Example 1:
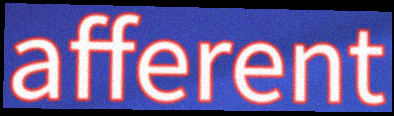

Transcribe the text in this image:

afferent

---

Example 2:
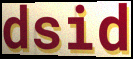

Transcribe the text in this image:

dsid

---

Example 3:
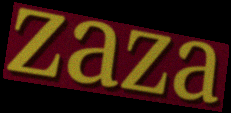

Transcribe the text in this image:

zaza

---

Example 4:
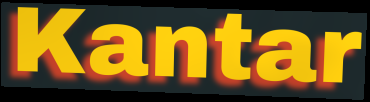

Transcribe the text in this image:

Kantar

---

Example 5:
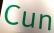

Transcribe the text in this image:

Cun